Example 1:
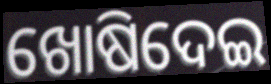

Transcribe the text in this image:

ଖୋଷିଦେଇ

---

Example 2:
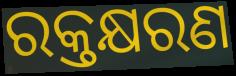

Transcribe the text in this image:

ରକ୍ତକ୍ଷରଣ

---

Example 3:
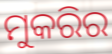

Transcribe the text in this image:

ମୁକରିର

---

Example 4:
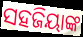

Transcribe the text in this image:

ସହଜିୟାଙ୍କ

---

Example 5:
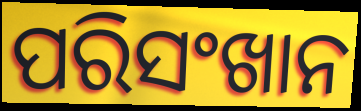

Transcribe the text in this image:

ପରିସଂଖାନ